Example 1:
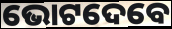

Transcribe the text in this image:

ଭୋଟଦେବେ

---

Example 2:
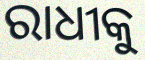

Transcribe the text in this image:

ରାଧୀକୁ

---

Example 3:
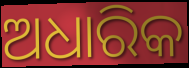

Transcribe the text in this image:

ଅଧାରିକ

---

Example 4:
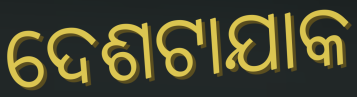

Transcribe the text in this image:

ଦେଶଟାଯାକ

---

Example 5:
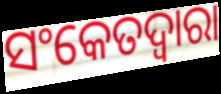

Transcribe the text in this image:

ସଂକେତଦ୍ଵାରା